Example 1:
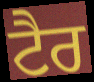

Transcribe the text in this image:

ਟੈਰ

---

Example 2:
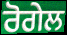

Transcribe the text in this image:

ਰੋਗੇਲ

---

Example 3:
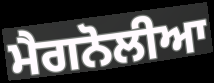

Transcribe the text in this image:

ਮੈਗਨੋਲੀਆ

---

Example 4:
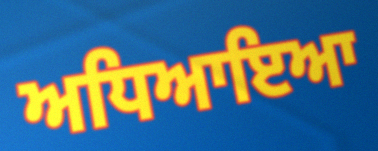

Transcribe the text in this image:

ਅਧਿਆਇਆ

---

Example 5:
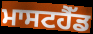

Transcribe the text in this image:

ਮਾਸਟਹੈੱਡ